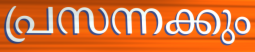
പ്രസന്നക്കും